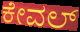
ಕೇವಲ್